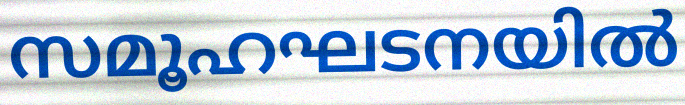
സമൂഹഘടനയിൽ